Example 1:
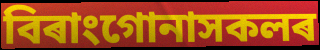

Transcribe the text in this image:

বিৰাংগোনাসকলৰ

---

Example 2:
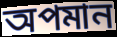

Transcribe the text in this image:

অপমান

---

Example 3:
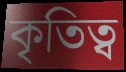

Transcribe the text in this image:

কৃতিত্ব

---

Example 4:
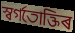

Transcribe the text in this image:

স্বৰ্গতোক্তিৰ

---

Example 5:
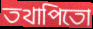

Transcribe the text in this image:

তথাপিতো